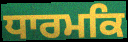
ਧਾਰਮਕਿ